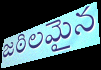
జఠిలమైన